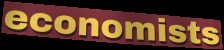
economists